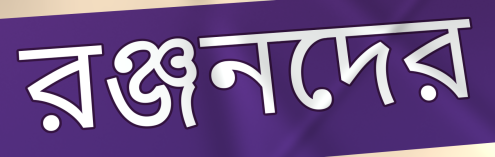
রঞ্জনদের